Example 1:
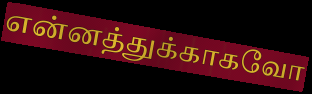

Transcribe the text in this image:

என்னத்துக்காகவோ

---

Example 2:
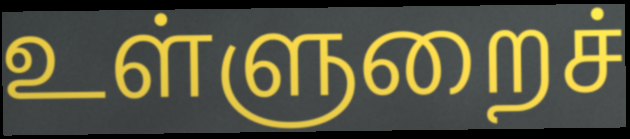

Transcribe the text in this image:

உள்ளுறைச்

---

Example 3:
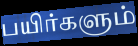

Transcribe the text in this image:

பயிர்களும்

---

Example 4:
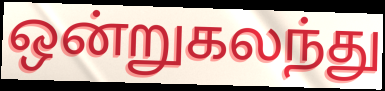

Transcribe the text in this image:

ஒன்றுகலந்து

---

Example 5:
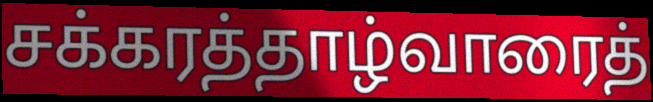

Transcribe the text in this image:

சக்கரத்தாழ்வாரைத்